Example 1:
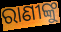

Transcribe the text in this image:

ରାଣୀଙ୍କୁ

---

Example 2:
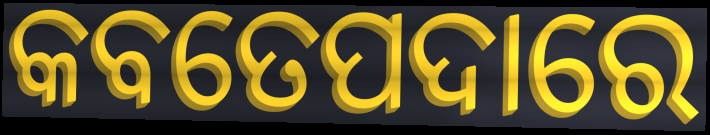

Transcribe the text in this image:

କବତେପଦାରେ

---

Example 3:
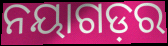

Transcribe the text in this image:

ନୟାଗଡ଼ର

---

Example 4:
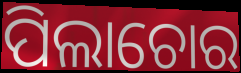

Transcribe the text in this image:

ପିଲାଚୋର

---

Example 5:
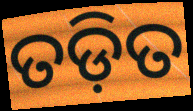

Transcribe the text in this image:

ତଡ଼ିତ